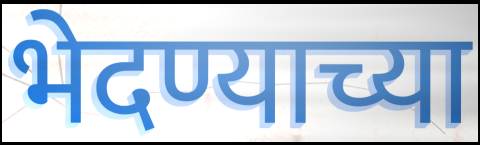
भेदण्याच्या